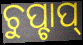
ଚୁପ୍ଚାପ୍